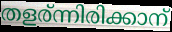
തളര്ന്നിരിക്കാന്